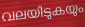
വലയിടുകയും